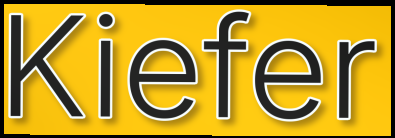
Kiefer